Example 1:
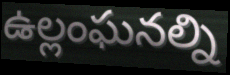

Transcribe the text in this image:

ఉల్లంఘనల్ని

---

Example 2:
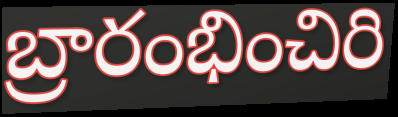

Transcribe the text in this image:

బ్రారంభించిరి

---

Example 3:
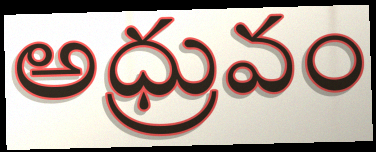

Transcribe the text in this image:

అధ్రువం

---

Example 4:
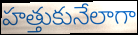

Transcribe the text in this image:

హత్తుకునేలాగా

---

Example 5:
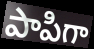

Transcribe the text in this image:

పాపిగా